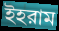
ইহরাম